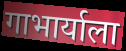
गाभार्याला